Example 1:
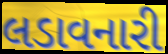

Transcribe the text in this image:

લડાવનારી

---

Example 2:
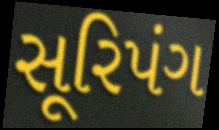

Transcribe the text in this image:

સૂરિપંગ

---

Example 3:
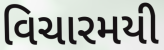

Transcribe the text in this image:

વિચારમયી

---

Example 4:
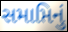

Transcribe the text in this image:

સમાપ્તિનું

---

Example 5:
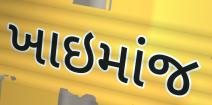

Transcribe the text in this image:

ખાઇમાંજ